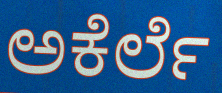
ಅಕೆರ್ಲೆ